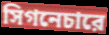
সিগনেচারে